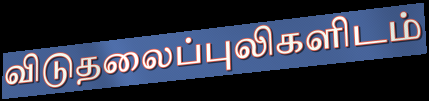
விடுதலைப்புலிகளிடம்